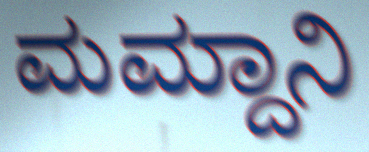
ಮಮ್ದಾನಿ